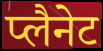
प्लैनेट